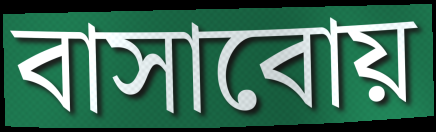
বাসাবোয়